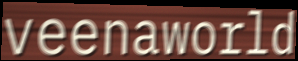
veenaworld